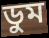
ডুম